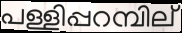
പള്ളിപ്പറമ്പില്